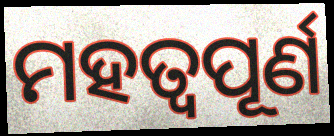
ମହତ୍ୱପୂର୍ଣ